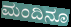
ಮಂದಿನೂ